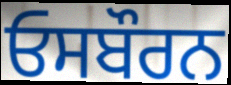
ਓਸਬੌਰਨ